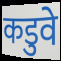
कडुवे